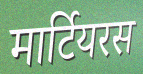
मार्टियरस